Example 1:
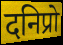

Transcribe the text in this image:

दनिप्रो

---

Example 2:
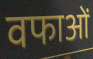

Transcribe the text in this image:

वफाओं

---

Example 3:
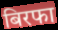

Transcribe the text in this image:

बिरफा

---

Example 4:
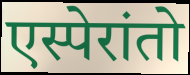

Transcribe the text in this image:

एस्पेरांतो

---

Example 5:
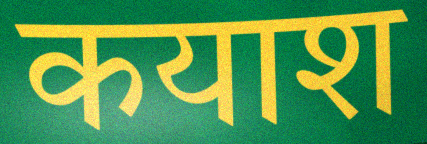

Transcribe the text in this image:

कयाश